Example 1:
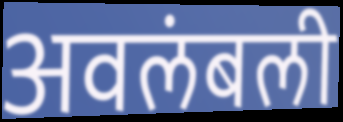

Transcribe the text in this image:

अवलंबली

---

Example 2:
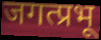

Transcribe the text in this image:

जगत्प्रभू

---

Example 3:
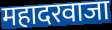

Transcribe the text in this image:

महादरवाजा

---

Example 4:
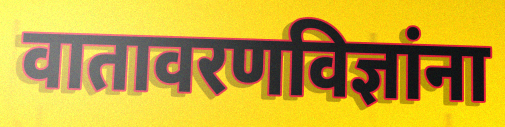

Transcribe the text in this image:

वातावरणविज्ञांना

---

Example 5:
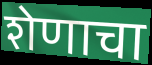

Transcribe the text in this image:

शेणाचा